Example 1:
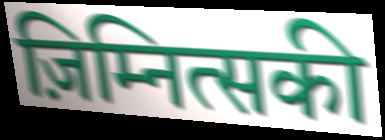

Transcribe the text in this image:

ज़िम्नित्सकी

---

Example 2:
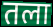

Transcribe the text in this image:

तला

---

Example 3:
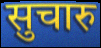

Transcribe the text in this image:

सुचारु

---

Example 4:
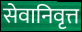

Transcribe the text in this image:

सेवानिवृत्त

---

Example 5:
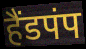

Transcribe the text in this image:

हैंडपंप